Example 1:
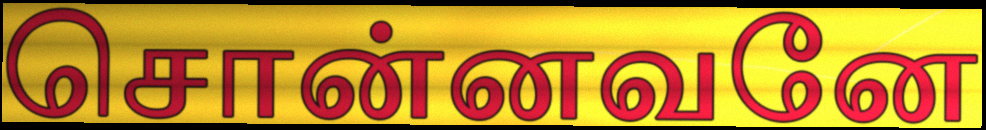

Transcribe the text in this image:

சொன்னவனே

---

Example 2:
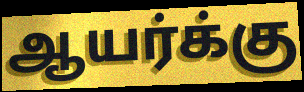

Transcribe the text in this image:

ஆயர்க்கு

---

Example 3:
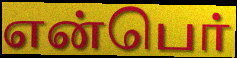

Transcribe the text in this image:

என்பெர்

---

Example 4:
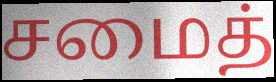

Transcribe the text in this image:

சமைத்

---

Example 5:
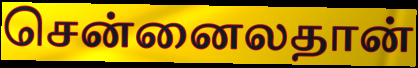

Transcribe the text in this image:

சென்னைலதான்